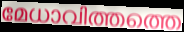
മേധാവിത്തത്തെ